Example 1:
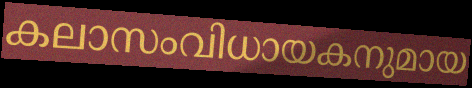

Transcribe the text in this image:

കലാസംവിധായകനുമായ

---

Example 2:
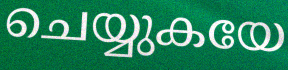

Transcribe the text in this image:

ചെയ്യുകയേ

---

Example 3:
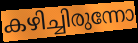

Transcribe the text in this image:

കഴിച്ചിരുന്നോ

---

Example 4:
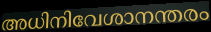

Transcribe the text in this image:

അധിനിവേശാനന്തരം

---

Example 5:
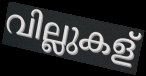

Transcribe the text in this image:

വില്ലുകള്